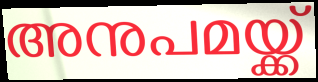
അനുപമയ്ക്ക്